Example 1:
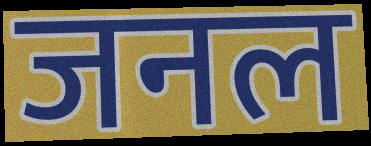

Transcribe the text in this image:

जनल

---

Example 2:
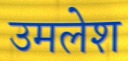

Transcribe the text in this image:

उमलेश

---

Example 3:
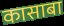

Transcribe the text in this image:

कासाबा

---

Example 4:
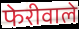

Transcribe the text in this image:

फेरीवाले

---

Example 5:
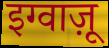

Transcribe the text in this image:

इग्वाज़ू